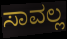
ಸಾವಲ್ಲ